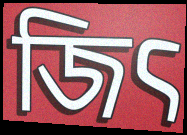
জিৎ